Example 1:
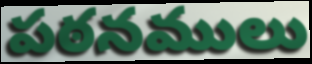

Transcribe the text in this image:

పఠనములు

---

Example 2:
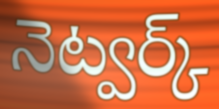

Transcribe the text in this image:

నెట్వర్క్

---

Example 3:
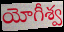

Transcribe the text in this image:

యోగీశ్వ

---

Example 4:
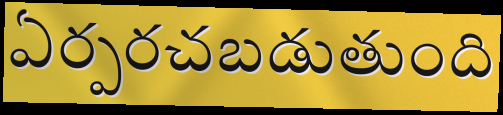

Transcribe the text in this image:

ఏర్పరచబడుతుంది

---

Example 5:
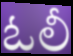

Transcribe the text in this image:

ఓలీ